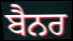
ਬੈਨਰ